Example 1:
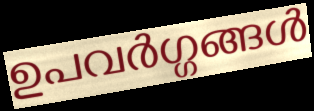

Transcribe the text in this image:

ഉപവർഗ്ഗങ്ങൾ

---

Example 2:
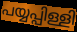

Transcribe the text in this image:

പയ്യപ്പിള്ളി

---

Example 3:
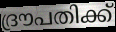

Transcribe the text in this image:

ദ്രൗപതിക്ക്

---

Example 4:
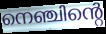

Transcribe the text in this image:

നെഞ്ചിന്റെ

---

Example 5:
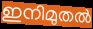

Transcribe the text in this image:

ഇനിമുതൽ